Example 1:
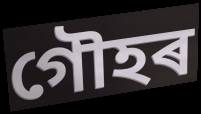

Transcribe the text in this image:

গৌহৰ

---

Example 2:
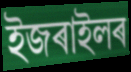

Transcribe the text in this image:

ইজৰাইলৰ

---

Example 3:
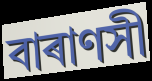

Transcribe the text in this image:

বাৰাণসী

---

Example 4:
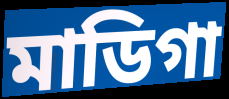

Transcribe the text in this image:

মাডিগা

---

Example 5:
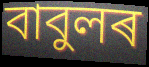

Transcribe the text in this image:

বাবুলৰ